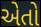
એતો